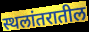
स्थलांतरातील